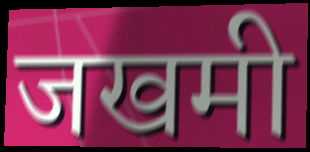
जखमी